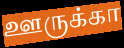
ஊருக்கா